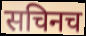
सचिनच